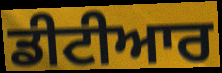
ਡੀਟੀਆਰ